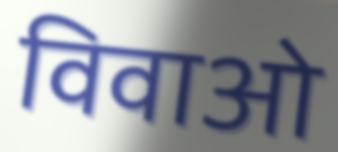
विवाओ